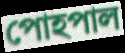
পোহপাল